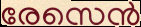
രേസെൻ